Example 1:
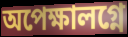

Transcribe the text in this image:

অপেক্ষালগ্নে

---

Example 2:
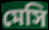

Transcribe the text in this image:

মেসি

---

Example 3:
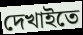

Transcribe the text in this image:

দেখাইতে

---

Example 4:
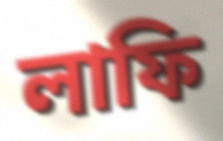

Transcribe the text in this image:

লাফি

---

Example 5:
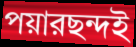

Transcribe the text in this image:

পয়ারছন্দই